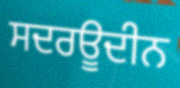
ਸਦਰਊਦੀਨ